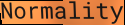
Normality